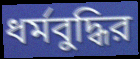
ধর্মবুদ্ধির